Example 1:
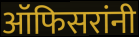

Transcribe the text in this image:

ऑफिसरांनी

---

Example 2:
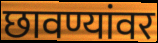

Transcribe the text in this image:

छावण्यांवर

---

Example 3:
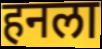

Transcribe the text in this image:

हनला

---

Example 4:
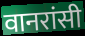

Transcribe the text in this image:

वानरांसी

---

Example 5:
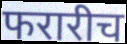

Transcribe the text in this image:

फरारीच